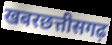
खबरछत्तीसगढ़